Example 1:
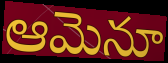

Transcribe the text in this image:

ఆమెనూ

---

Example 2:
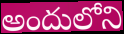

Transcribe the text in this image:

అందులోని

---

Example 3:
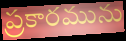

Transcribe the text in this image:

ప్రకారమును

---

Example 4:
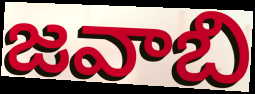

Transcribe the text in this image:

జవాబి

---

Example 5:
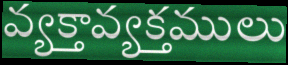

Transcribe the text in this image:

వ్యక్తావ్యక్తములు